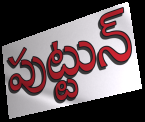
పుట్టున్